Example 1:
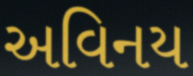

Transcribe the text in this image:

અવિનય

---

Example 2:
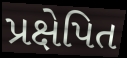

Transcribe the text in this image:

પ્રક્ષેપિત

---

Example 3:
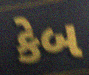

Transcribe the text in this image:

કેબ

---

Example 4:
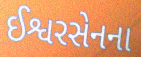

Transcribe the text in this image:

ઈશ્વરસેનના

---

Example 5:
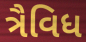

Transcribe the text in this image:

ત્રૈવિધ